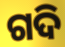
ଗଦି